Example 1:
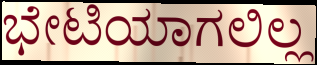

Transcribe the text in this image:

ಭೇಟಿಯಾಗಲಿಲ್ಲ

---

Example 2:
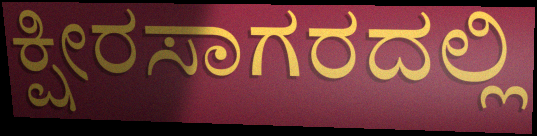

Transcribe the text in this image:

ಕ್ಷೀರಸಾಗರದಲ್ಲಿ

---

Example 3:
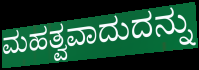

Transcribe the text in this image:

ಮಹತ್ವವಾದುದನ್ನು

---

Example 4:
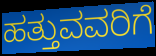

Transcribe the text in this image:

ಹತ್ತುವವರಿಗೆ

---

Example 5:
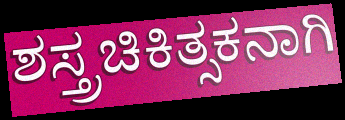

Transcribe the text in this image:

ಶಸ್ತ್ರಚಿಕಿತ್ಸಕನಾಗಿ